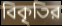
বিকৃতির